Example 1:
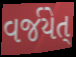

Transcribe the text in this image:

વર્જયેત્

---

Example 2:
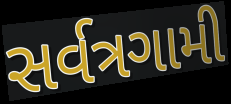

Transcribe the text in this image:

સર્વત્રગામી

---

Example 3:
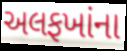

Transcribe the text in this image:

અલફખાંના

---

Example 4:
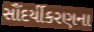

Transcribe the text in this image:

સૌંદર્યીકરણના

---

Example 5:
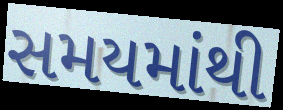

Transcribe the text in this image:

સમયમાંથી